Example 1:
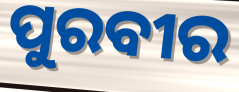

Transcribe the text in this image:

ପୁରବୀର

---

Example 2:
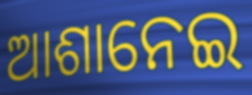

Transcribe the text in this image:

ଆଶାନେଇ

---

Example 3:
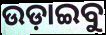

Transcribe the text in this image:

ଉଡ଼ାଇବୁ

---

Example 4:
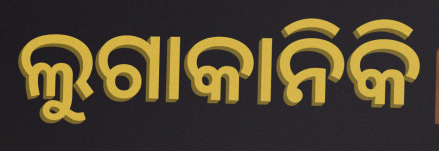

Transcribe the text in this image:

ଲୁଗାକାନିକି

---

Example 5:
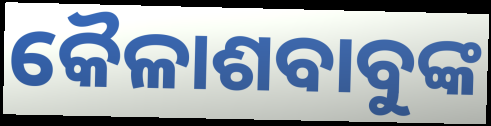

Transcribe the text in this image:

କୈଳାଶବାବୁଙ୍କ